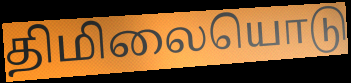
திமிலையொடு